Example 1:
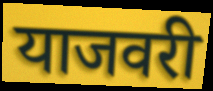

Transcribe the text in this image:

याजवरी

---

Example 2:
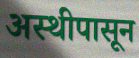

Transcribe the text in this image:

अस्थीपासून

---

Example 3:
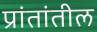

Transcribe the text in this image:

प्रांतांतील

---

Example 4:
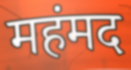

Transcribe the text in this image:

महंमद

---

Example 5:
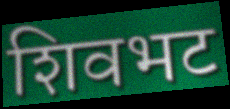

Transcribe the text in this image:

शिवभट